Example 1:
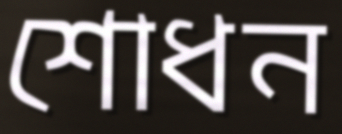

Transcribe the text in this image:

শোধন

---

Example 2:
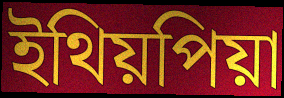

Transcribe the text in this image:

ইথিয়পিয়া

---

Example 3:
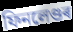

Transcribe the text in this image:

ফিনলেণ্ডৰ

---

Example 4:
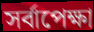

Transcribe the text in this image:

সৰ্বাপেক্ষা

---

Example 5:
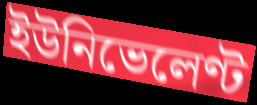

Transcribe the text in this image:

ইউনিভেলেণ্ট